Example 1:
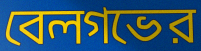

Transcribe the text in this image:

বেলগভের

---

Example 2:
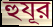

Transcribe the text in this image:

হুযূর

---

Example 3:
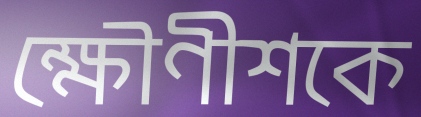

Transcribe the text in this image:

ক্ষৌণীশকে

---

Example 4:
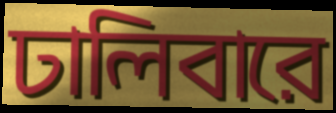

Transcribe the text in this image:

ঢালিবারে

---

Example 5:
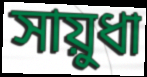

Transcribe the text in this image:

সায়ুধা